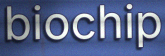
biochip